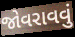
જોવરાવવું